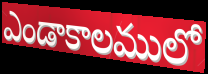
ఎండాకాలములో